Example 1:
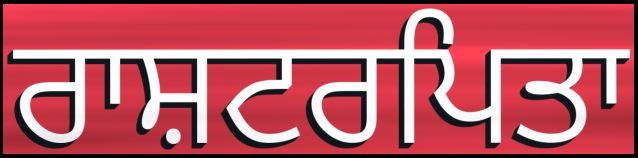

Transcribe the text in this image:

ਰਾਸ਼ਟਰਪਿਤਾ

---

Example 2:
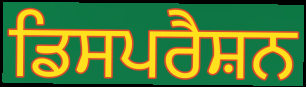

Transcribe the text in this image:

ਡਿਸਪਰੈਸ਼ਨ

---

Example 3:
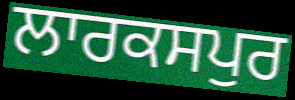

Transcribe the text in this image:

ਲਾਰਕਸਪੁਰ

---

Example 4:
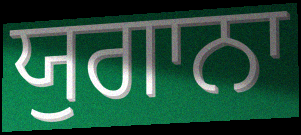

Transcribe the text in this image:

ਯੁਗਾਨਾ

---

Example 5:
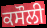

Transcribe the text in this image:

ਕਸੌਲੀ